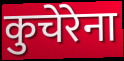
कुचेरेना